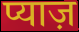
प्याज़